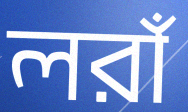
লরাঁ